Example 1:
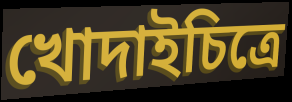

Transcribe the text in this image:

খোদাইচিত্রে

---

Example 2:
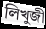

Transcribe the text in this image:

লিখুজী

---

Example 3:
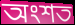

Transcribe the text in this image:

অংশত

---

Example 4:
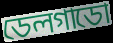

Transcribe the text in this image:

ডেলগাডো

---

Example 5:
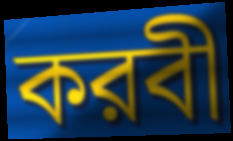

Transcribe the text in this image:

করবী